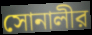
সোনালীর